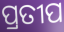
ପ୍ରତୀପ